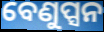
ବେଣୁପ୍ସନ